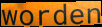
worden